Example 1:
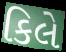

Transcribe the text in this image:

કિલે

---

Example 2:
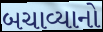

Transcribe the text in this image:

બચાવ્યાનો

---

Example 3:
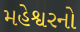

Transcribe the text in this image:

મહેશ્વરનો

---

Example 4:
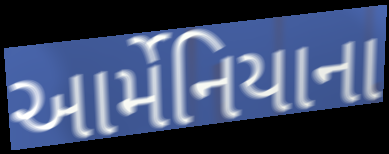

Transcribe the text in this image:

આર્મેનિયાના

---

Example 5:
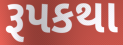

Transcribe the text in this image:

રૂપકથા